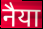
नैया